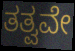
ತತ್ವವೇ